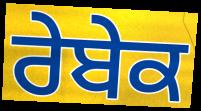
ਰੇਬੇਕ